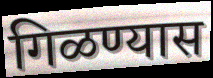
गिळण्यास